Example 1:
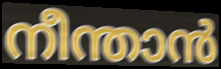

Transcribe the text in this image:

നീന്താൻ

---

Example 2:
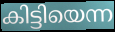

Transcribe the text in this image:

കിട്ടിയെന്ന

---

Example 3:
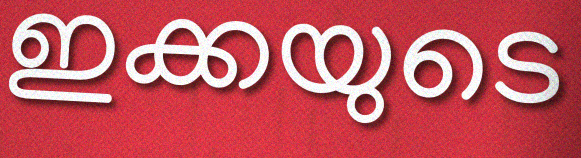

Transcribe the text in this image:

ഇക്കയുടെ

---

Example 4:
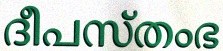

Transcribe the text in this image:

ദീപസ്തംഭ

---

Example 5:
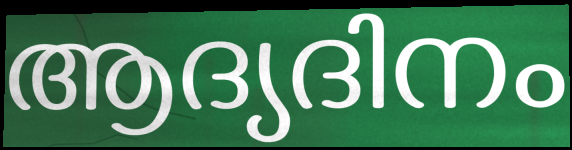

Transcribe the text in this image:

ആദ്യദിനം